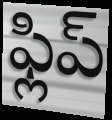
ఫ్లిప్